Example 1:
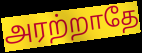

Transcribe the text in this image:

அரற்றாதே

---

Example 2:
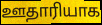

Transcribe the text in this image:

ஊதாரியாக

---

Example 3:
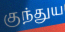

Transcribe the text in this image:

குந்துய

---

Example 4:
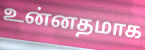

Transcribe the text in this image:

உன்னதமாக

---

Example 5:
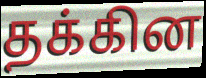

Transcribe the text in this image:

தக்கின